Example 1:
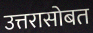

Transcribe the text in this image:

उत्तरासोबत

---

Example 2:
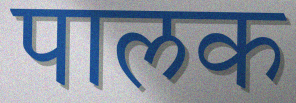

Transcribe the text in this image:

पालक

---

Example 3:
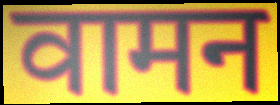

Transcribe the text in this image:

वामन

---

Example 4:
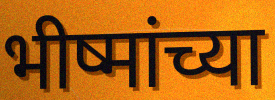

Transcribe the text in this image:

भीष्मांच्या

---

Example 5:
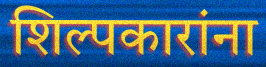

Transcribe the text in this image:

शिल्पकारांना